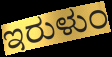
ಇರುಳುಂ